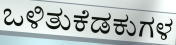
ಒಳಿತುಕೆಡಕುಗಳ